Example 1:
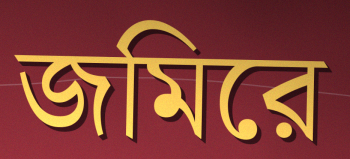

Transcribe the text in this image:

জমিরে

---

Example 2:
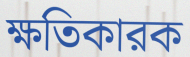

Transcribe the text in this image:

ক্ষতিকারক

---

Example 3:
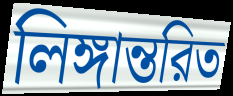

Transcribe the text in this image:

লিঙ্গান্তরিত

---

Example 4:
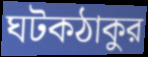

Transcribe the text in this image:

ঘটকঠাকুর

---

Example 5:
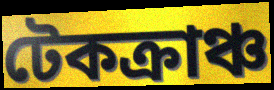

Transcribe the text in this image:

টেকক্রাঞ্চ